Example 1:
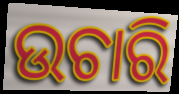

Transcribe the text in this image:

ଉଚାରି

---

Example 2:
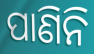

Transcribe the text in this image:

ପାଣିନି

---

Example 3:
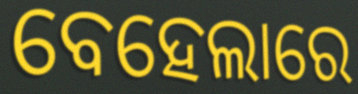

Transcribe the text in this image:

ବେହେଲାରେ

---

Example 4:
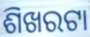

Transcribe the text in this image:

ଶିଖରଟା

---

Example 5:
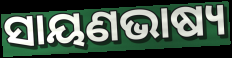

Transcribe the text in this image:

ସାୟଣଭାଷ୍ୟ